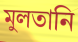
মুলতানি